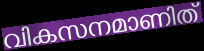
വികസനമാണിത്